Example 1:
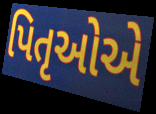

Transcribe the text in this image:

પિતૃઓેએ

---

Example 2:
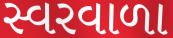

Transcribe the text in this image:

સ્વરવાળા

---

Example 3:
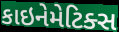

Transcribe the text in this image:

કાઇનેમેટિક્સ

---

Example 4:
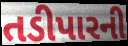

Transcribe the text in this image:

તડીપારની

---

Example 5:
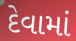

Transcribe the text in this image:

દેવામાં